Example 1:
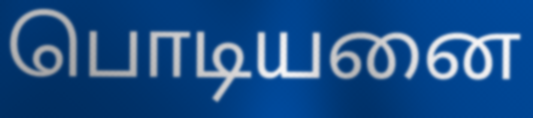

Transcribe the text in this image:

பொடியனை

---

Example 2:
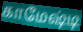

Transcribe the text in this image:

காமேஷ்டி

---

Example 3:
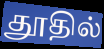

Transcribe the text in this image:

தூதில்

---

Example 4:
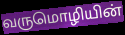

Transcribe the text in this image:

வருமொழியின்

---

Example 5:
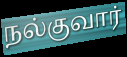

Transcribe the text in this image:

நல்குவார்